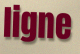
ligne